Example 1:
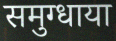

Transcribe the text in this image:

समुग्धाया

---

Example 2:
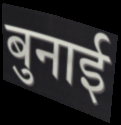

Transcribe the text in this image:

बुनाई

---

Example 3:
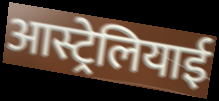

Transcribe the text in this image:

आस्ट्रेलियाई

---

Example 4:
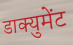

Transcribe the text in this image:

डाक्युमेंट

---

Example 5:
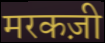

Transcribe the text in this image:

मरकज़ी